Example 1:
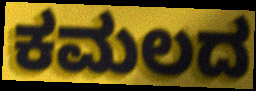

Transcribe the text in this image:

ಕಮಲದ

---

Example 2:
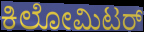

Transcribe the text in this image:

ಕಿಲೋಮಿಟರ್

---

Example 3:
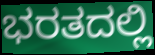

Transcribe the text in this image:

ಭರತದಲ್ಲಿ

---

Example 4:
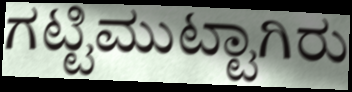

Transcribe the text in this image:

ಗಟ್ಟಿಮುಟ್ಟಾಗಿರು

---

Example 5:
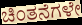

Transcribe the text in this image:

ಚಿಂತನೆಗಳೇ